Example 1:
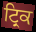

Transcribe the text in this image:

ਟ੍ਰਿਕ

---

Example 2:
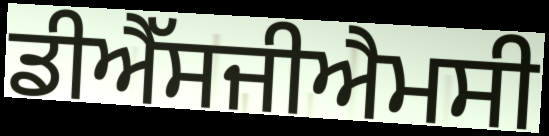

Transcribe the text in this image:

ਡੀਐੱਸਜੀਐਮਸੀ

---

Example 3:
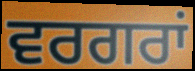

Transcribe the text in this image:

ਵਰਗਰਾਂ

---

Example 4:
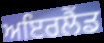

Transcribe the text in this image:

ਅਇਰਲੈਂਡ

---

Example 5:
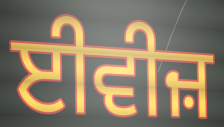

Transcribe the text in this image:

ਈਵੀਜ਼